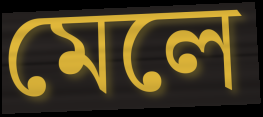
মেলে